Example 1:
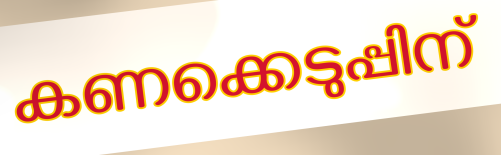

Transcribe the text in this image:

കണക്കെടുപ്പിന്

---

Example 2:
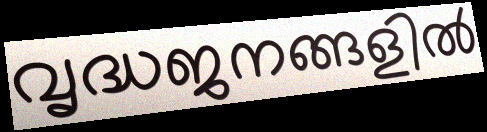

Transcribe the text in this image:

വൃദ്ധജനങ്ങളിൽ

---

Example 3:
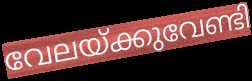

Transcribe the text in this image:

വേലയ്ക്കുവേണ്ടി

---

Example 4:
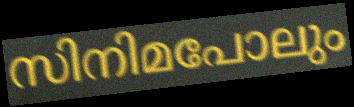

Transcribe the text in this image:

സിനിമപോലും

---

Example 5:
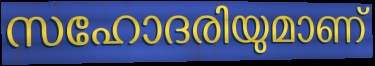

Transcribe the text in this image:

സഹോദരിയുമാണ്